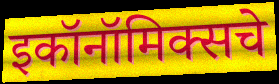
इकॉनॉमिक्सचे